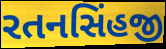
રતનસિંહજી